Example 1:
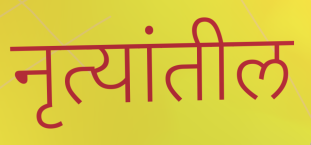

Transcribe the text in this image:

नृत्यांतील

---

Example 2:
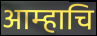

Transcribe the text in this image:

आम्हाचि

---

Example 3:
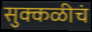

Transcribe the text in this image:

सुक्कळीचं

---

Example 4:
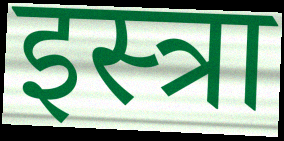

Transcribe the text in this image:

इस्त्रा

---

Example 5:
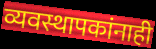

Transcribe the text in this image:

व्यवस्थापकांनाही